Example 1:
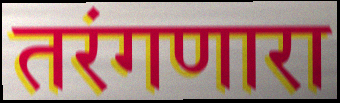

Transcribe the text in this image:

तरंगणारा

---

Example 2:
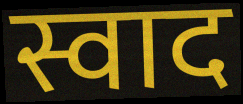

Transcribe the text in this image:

स्वाद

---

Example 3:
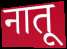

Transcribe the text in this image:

नातू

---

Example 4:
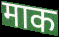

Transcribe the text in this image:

माक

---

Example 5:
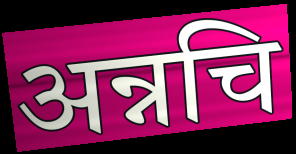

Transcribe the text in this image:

अन्नचि